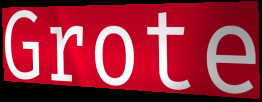
Grote